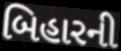
બિહારની